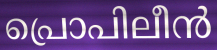
പ്രൊപിലീൻ